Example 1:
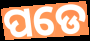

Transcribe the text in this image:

ପଡେ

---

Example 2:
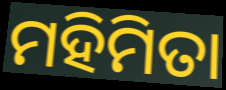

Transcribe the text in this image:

ମହିମିତା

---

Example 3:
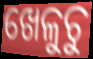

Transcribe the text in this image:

ଖେଳୁଚୁ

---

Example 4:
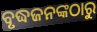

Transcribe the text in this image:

ବୃଦ୍ଧଜନଙ୍କଠାରୁ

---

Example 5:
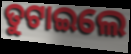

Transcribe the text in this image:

ତୁଟାଇଲେ